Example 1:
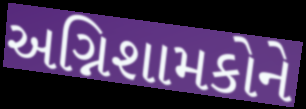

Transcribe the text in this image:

અગ્નિશામકોને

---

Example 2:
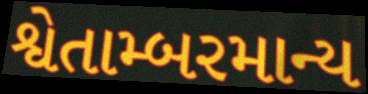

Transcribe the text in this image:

શ્વેતામ્બરમાન્ય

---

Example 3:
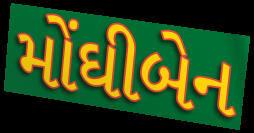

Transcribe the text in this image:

મોંઘીબેન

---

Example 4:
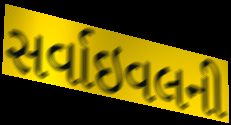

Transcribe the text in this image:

સર્વાઇવલની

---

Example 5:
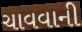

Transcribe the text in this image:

ચાવવાની